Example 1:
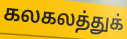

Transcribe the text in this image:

கலகலத்துக்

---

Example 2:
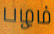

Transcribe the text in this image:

பழம்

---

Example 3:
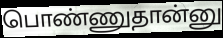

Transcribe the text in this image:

பொண்ணுதான்னு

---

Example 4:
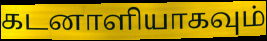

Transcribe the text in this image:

கடனாளியாகவும்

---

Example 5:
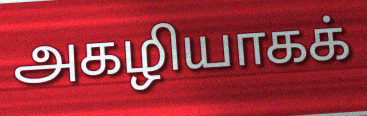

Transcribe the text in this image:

அகழியாகக்